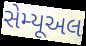
સેમ્યૂઅલ